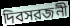
দিবসরজনী